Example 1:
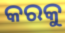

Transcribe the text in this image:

କରକୁ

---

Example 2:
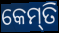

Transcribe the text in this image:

କେମ୍‍ତି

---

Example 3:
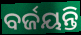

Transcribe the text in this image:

ବର୍ଜୟନ୍ତି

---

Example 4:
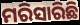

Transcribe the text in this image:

ମରିସାରିଛି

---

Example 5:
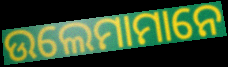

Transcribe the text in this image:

ଉଲେମାମାନେ